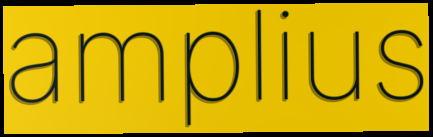
amplius